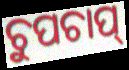
ଚୁପଚାପ୍